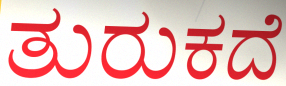
ತುರುಕದೆ